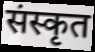
संस्‍कृत